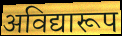
अविद्यारूप